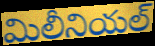
మిలీనియల్